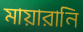
মায়ারানি